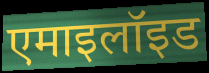
एमाइलॉइड